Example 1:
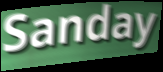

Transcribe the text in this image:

Sanday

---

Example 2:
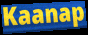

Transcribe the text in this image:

Kaanap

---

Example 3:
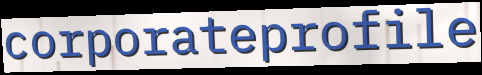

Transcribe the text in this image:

corporateprofile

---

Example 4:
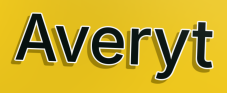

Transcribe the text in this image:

Averyt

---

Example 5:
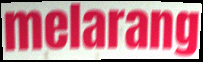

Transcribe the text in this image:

melarang